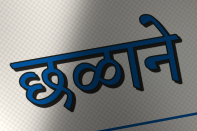
छळाने